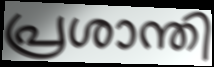
പ്രശാന്തി